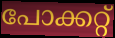
പോക്കറ്റ്